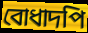
বোধাদপি